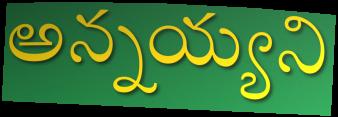
అన్నయ్యని